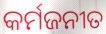
କର୍ମଜନୀତ